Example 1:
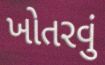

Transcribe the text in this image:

ખોતરવું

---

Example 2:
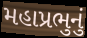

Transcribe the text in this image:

મહાપ્રભુનું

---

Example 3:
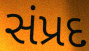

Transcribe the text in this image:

સંપ્રદ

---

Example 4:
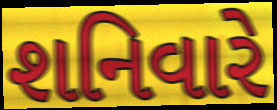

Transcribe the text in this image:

શનિવારે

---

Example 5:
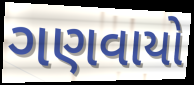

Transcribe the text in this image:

ગણવાયો